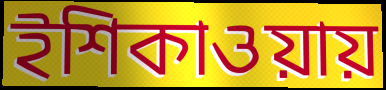
ইশিকাওয়ায়